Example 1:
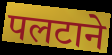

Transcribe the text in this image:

पलटाने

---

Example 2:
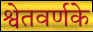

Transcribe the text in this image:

श्वेतवर्णके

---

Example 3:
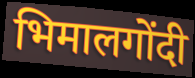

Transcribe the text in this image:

भिमालगोंदी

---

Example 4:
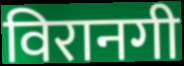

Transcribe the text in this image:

विरानगी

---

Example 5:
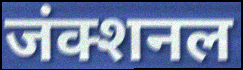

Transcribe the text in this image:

जंक्शनल